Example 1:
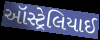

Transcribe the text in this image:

ઑસ્ટ્રેલિયાઈ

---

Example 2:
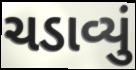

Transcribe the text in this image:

ચડાવ્યું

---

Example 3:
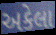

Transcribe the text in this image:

અકેલા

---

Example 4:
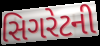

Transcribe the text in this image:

સિગરેટની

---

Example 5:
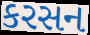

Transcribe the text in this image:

કરસન